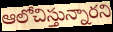
ఆలోచిస్తున్నారని